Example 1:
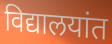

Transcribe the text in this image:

विद्यालयांत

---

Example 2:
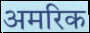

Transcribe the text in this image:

अमरिक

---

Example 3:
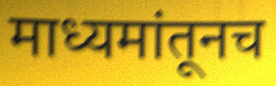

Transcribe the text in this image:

माध्यमांतूनच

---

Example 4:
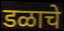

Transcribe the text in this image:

डळाचे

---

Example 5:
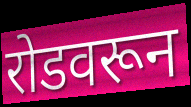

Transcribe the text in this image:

रोडवरून